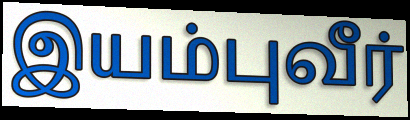
இயம்புவீர்